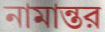
নামান্তর